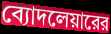
ব্যোদলেয়ারের